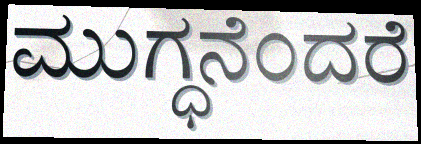
ಮುಗ್ಧನೆಂದರೆ